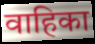
वाहिका